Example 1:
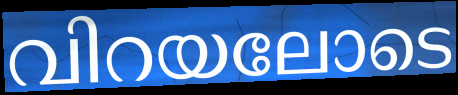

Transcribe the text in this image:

വിറയലോടെ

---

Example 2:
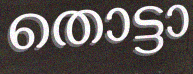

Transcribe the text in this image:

തൊട്ടാ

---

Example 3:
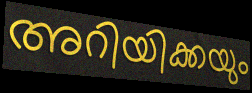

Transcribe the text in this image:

അറിയിക്കയും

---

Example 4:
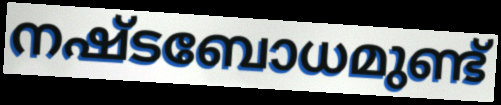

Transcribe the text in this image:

നഷ്ടബോധമുണ്ട്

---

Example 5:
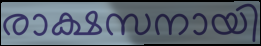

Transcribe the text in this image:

രാക്ഷസനായി